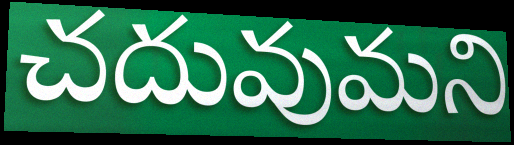
చదువుమని